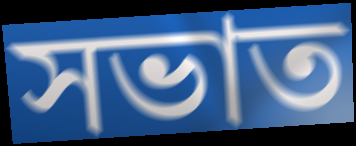
সভাত